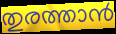
തുരത്താൻ